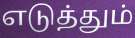
எடுத்தும்